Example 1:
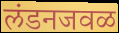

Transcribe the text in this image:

लंडनजवळ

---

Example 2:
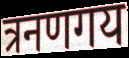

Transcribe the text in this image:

त्रनणगय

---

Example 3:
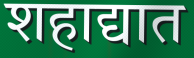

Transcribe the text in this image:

शहाद्यात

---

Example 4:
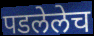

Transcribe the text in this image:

पडलेलेच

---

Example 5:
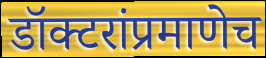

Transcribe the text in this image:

डॉक्टरांप्रमाणेच